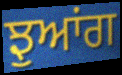
ਝੁਆਂਗ